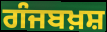
ਗੰਜਬਖ਼ਸ਼